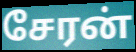
சேரன்